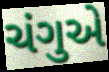
ચંગુએ